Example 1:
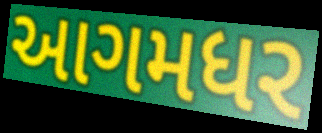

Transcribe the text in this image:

આગમધર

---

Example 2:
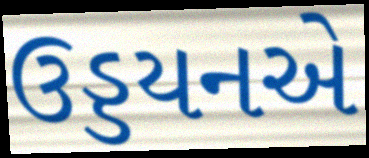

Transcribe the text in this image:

ઉડ્ડયનએ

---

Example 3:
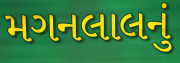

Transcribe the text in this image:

મગનલાલનું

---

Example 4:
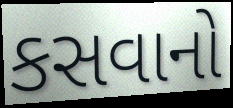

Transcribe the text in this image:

કસવાનો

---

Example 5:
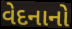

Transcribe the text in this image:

વેદનાનો